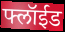
फ्लॉईड